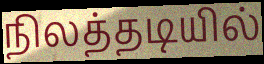
நிலத்தடியில்